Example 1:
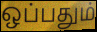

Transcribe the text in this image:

ஒப்பதும்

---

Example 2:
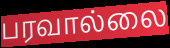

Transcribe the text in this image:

பரவால்லை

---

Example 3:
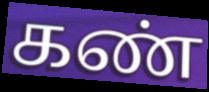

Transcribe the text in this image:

கண்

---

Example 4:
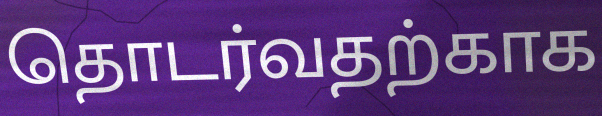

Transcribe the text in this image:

தொடர்வதற்காக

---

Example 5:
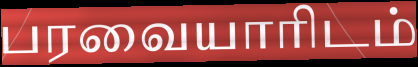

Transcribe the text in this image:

பரவையாரிடம்